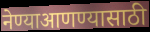
नेण्याआणण्यासाठी